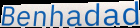
Benhadad